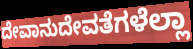
ದೇವಾನುದೇವತೆಗಳೆಲ್ಲಾ